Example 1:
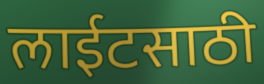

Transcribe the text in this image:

लाईटसाठी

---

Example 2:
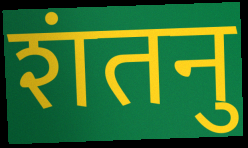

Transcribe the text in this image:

शंतनु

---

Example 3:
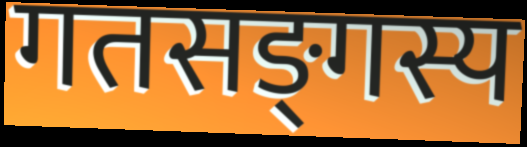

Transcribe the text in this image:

गतसङ्गस्य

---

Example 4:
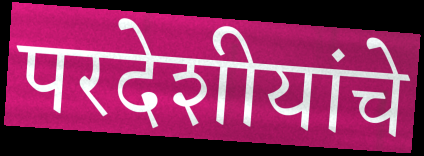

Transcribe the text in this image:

परदेशीयांचे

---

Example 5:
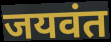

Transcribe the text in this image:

जयवंत